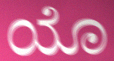
ಯೊ